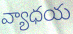
వ్యాధయ